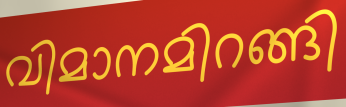
വിമാനമിറങ്ങി